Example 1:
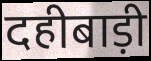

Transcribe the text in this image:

दहीबाड़ी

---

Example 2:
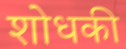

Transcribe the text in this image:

शोधकी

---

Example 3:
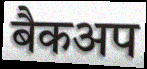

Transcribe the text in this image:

बैकअप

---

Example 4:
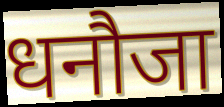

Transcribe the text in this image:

धनौजा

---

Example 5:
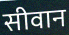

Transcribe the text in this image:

सीवान